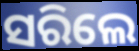
ସରିଲେ